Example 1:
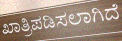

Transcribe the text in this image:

ಖಾತ್ರಿಪಡಿಸಲಾಗಿದೆ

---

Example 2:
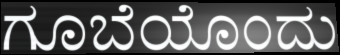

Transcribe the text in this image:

ಗೂಬೆಯೊಂದು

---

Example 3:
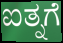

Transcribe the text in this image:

ಐತ್ನಗೆ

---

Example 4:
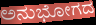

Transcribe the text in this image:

ಅನುಭೋಗದ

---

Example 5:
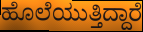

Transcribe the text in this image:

ಹೊಲೆಯುತ್ತಿದ್ದಾರೆ